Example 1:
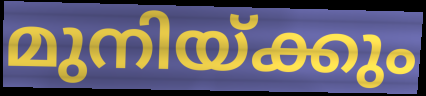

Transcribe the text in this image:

മുനിയ്ക്കും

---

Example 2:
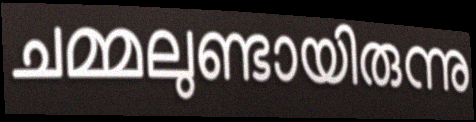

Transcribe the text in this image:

ചമ്മലുണ്ടായിരുന്നു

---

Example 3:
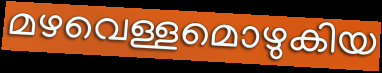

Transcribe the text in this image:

മഴവെള്ളമൊഴുകിയ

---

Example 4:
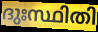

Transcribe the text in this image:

ദുഃസ്ഥിതി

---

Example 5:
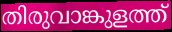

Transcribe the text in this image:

തിരുവാങ്കുളത്ത്